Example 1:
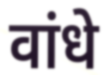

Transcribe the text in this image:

वांधे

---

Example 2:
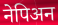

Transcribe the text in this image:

नेपिअन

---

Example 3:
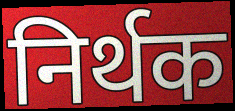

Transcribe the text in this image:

निर्थक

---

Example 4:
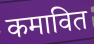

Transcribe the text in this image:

कमावित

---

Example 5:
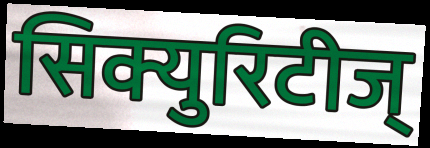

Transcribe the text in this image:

सिक्युरिटीज्